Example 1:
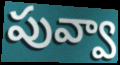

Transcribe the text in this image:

పువ్వా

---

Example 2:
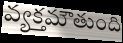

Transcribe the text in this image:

వ్యక్తమౌతుంది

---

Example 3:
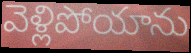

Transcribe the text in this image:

వెళ్లిపోయాను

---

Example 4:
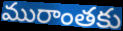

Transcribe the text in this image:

మురాంతకు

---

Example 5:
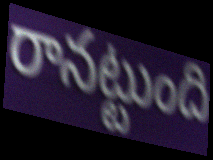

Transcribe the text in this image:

రానట్టుంది